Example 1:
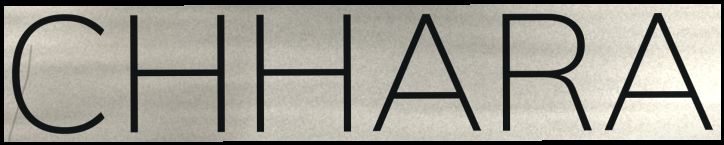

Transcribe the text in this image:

CHHARA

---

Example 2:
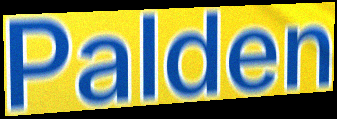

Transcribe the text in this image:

Palden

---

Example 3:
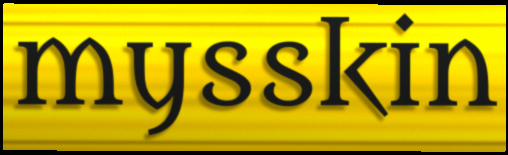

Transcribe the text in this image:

mysskin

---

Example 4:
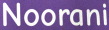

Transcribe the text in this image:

Noorani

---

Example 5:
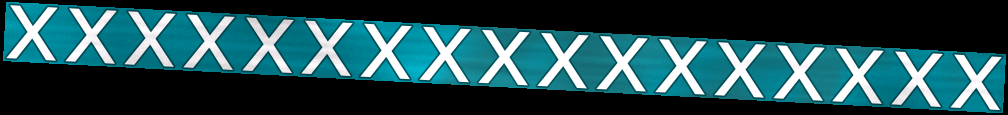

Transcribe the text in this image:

xxxxxxxxxxxxxxxxx